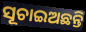
ସୂଚାଇଅଛନ୍ତି